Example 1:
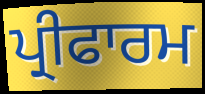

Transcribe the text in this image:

ਪ੍ਰੀਫਾਰਮ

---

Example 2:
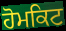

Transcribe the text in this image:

ਹੋਮਕਿਟ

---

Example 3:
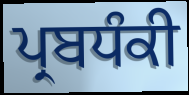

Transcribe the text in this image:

ਪ੍ਰਬਧੰਕੀ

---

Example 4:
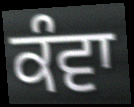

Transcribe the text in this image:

ਕੰਵਾ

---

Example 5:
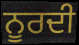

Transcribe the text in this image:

ਨੂਰਦੀ